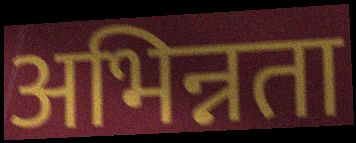
अभिन्नता